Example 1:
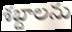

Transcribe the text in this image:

శబ్దాలను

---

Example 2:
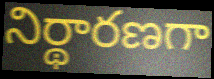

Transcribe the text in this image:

నిర్థారణగా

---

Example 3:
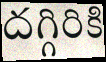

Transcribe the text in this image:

దగ్గిరికి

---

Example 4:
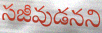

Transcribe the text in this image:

సజీవుడనని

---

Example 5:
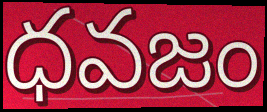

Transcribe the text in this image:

ధవజం